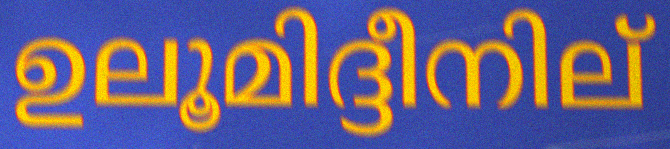
ഉലൂമിദ്ദീനില്